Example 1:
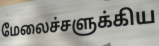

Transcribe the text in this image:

மேலைச்சளுக்கிய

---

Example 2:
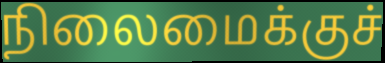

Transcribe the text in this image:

நிலைமைக்குச்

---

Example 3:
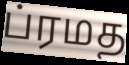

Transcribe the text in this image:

ப்ரமத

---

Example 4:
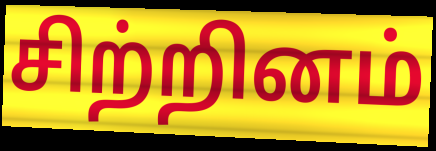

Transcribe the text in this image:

சிற்றினம்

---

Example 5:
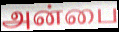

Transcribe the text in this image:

அன்பை